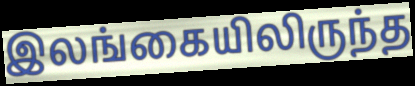
இலங்கையிலிருந்த